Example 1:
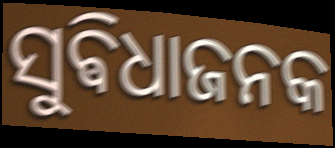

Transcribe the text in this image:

ସୁଵିଧାଜନକ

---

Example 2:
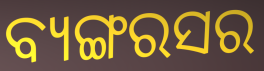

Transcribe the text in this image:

ବ୍ୟଙ୍ଗରସର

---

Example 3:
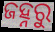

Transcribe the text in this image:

ଜହ୍ନରୁ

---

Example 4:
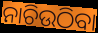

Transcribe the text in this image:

ନାଚିଉଠିବା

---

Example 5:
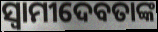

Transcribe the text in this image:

ସ୍ୱାମୀଦେବତାଙ୍କ